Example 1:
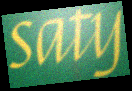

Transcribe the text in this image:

saty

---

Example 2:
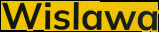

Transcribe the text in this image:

Wislawa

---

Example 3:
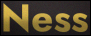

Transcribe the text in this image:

Ness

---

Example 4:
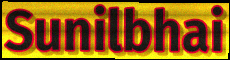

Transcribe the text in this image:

Sunilbhai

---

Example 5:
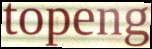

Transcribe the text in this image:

topeng